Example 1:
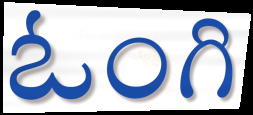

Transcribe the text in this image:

ఓంగి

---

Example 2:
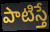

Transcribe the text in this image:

పాటిస్తే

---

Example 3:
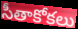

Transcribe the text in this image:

సీతాకోకలు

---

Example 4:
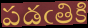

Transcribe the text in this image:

పడఁతికి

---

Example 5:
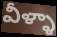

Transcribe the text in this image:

వీళ్ళా